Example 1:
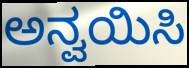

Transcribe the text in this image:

ಅನ್ವಯಿಸಿ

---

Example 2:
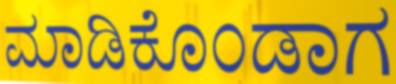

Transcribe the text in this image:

ಮಾಡಿಕೊಂಡಾಗ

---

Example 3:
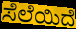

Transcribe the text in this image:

ಸೆಲೆಯಿದೆ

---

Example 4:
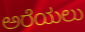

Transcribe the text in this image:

ಅರೆಯಲು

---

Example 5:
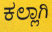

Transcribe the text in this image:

ಕಲ್ಲಾಗಿ